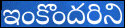
ఇంకొందరిని